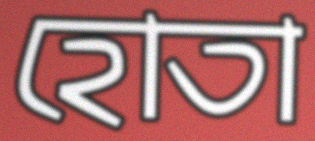
হোতা